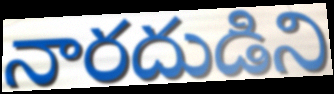
నారదుడిని